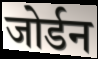
जोर्डन